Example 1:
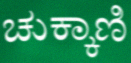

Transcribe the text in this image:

ಚುಕ್ಕಾಣಿ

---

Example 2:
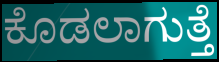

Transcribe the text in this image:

ಕೊಡಲಾಗುತ್ತೆ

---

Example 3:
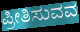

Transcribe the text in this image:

ಪ್ರೀತಿಸುವವ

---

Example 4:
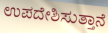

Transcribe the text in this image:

ಉಪದೇಶಿಸುತ್ತಾನೆ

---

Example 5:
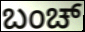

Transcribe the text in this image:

ಬಂಚ್